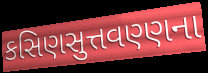
કસિણસુત્તવણ્ણના